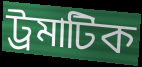
ট্রমাটিক